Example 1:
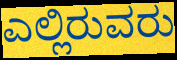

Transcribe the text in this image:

ಎಲ್ಲಿರುವರು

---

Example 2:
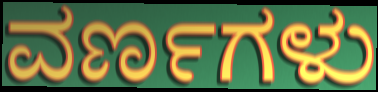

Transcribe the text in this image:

ವರ್ಣಗಳು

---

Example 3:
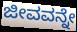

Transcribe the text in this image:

ಜೀವವನ್ನೇ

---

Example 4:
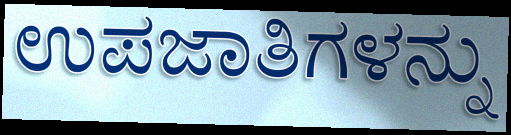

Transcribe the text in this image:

ಉಪಜಾತಿಗಳನ್ನು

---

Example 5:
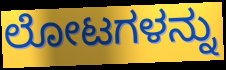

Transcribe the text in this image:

ಲೋಟಗಳನ್ನು